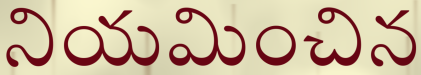
నియమించిన